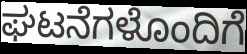
ಘಟನೆಗಳೊಂದಿಗೆ